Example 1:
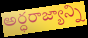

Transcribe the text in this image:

అర్ధరాజ్యాన్ని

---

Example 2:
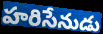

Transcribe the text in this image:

హరిసేనుడు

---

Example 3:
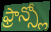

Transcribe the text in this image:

ఫ్రాన్స్లో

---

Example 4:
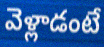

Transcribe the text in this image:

వెళ్లాడంటే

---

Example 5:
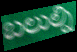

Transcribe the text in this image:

బలుల్ని